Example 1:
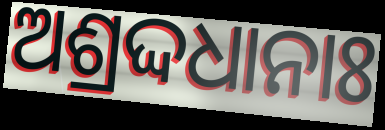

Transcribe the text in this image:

ଅଶ୍ରଦ୍ଦଧାନାଃ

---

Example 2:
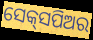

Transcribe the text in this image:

ସେକ୍‌ସପିଅର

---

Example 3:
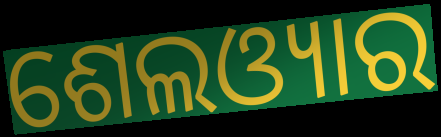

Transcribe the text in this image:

ଶେଲଓ୍ୟାର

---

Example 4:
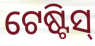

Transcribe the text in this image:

ଟେଷ୍ଟିସ୍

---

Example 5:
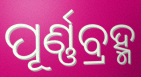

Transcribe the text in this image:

ପୂର୍ଣ୍ଣବ୍ରହ୍ମ